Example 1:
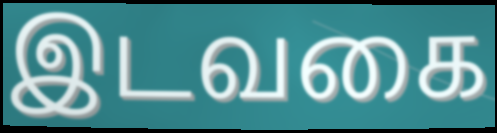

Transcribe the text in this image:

இடவகை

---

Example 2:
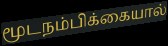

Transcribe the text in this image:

மூடநம்பிக்கையால்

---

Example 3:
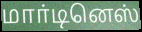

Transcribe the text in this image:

மார்டினெஸ்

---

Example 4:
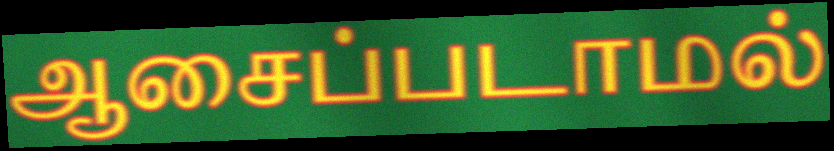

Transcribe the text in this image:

ஆசைப்படாமல்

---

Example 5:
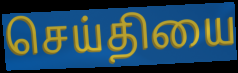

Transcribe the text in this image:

செய்தியை